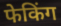
फेकिंग